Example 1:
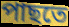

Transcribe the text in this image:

পাছতে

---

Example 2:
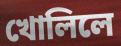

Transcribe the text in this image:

খোলিলে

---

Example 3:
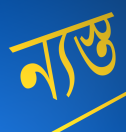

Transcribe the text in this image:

ন্যস্ত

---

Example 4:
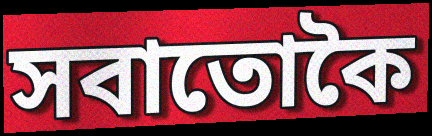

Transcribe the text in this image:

সবাতোকৈ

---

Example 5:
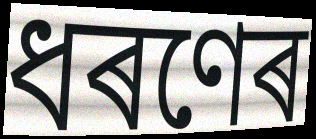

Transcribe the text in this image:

ধৰণেৰ